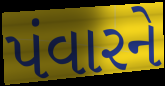
પંવારને